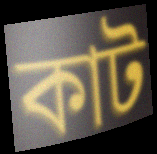
কাট